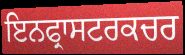
ਇਨਫ੍ਰਾਸਟਰਕਚਰ